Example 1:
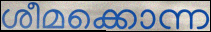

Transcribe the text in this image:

ശീമക്കൊന്ന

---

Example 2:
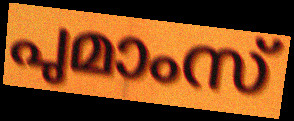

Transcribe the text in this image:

പുമാംസ്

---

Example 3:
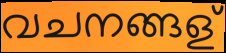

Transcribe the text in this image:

വചനങ്ങള്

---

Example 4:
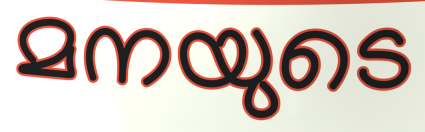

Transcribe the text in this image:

മനയുടെ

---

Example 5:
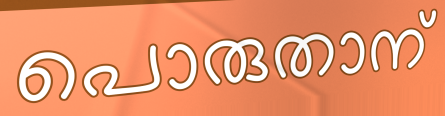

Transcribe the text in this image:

പൊരുതാന്